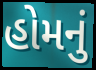
હોમનું